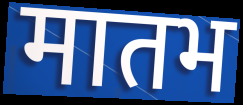
मातभ